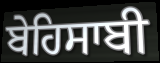
ਬੇਹਿਸਾਬੀ